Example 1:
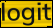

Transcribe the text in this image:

logit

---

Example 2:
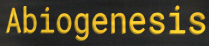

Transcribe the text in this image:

Abiogenesis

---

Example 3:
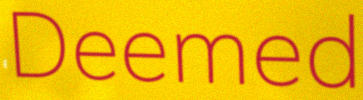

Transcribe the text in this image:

Deemed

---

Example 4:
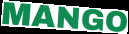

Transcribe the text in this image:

MANGO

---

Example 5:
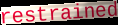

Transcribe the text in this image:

restrained